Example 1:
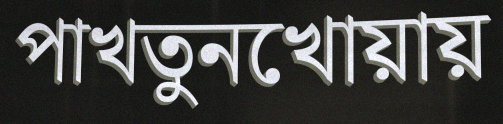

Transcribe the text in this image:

পাখতুনখোয়ায়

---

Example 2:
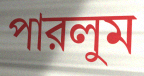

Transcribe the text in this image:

পারলুম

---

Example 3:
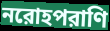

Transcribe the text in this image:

নরোহপরাণি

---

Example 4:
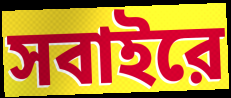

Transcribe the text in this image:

সবাইরে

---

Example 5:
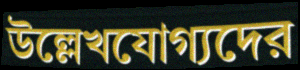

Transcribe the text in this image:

উল্লেখযোগ্যদের